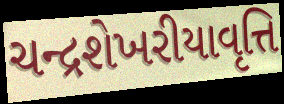
ચન્દ્રશેખરીયાવૃત્તિ